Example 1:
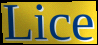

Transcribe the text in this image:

Lice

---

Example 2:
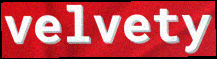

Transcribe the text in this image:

velvety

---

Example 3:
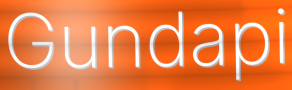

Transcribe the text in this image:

Gundapi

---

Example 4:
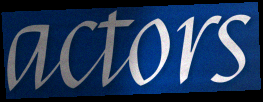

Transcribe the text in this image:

actors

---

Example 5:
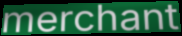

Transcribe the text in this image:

merchant